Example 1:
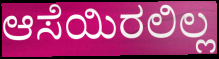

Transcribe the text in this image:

ಆಸೆಯಿರಲಿಲ್ಲ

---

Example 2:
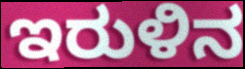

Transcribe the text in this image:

ಇರುಳಿನ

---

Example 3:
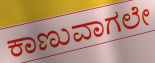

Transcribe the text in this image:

ಕಾಣುವಾಗಲೇ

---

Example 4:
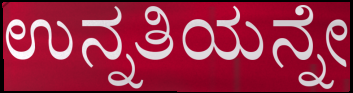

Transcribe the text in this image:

ಉನ್ನತಿಯನ್ನೇ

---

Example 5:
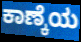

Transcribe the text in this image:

ಕಾಣ್ಕೆಯ